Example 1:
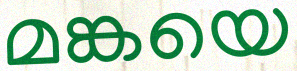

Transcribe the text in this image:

മങ്കയെ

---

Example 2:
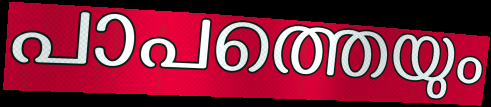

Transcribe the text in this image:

പാപത്തെയും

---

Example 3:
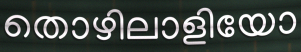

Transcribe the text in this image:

തൊഴിലാളിയോ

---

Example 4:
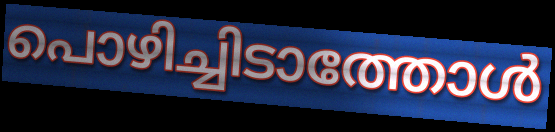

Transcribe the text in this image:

പൊഴിച്ചിടാത്തോൾ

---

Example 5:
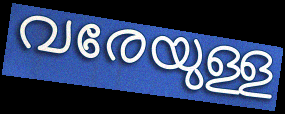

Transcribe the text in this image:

വരേയുള്ള